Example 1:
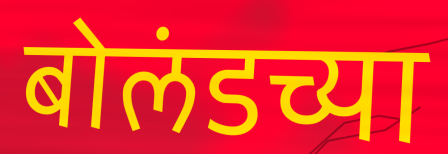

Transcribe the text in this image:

बोलंडच्या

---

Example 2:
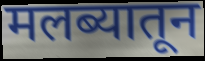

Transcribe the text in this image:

मलब्यातून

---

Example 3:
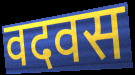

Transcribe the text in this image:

वदवस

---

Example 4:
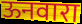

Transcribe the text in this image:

ऊनवारा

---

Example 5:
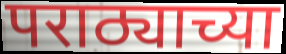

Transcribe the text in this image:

पराठ्याच्या